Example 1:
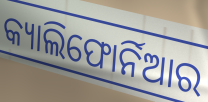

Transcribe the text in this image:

କ୍ୟାଲିଫୋର୍ନିଆର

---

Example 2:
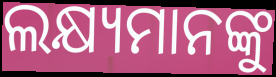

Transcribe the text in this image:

ଲକ୍ଷ୍ୟମାନଙ୍କୁ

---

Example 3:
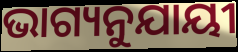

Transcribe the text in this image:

ଭାଗ୍ୟନୁଯାୟୀ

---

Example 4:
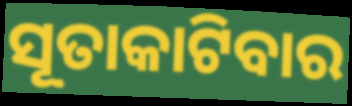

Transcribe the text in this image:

ସୂତାକାଟିବାର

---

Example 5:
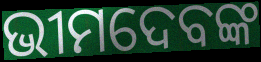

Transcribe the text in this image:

ଭୀମଦେବଙ୍କ